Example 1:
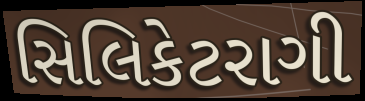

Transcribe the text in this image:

સિલિકેટરાગી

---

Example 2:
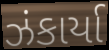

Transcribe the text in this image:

ઝંકાર્યા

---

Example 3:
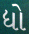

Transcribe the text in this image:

દ્યો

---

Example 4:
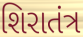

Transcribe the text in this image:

શિરાતંત્ર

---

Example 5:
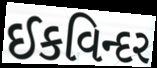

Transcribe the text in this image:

ઈકવિન્દર